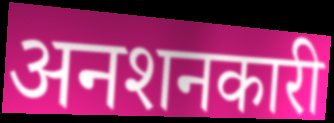
अनशनकारी